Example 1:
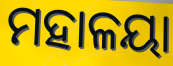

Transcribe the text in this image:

ମହାଳୟା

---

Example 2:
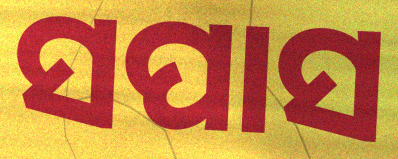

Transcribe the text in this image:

ସପାସ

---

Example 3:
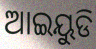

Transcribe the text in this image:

ଆଇୟୁଡି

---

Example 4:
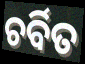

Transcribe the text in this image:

ଚର୍ବିତ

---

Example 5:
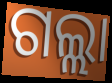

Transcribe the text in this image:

ଗଲ୍ଲା